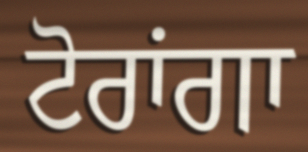
ਟੋਰਾਂਗਾ